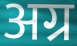
अग्र